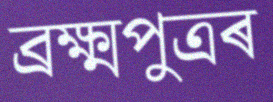
ব্ৰক্ষ্মপুত্ৰৰ